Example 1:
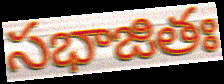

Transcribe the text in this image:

సభాజితః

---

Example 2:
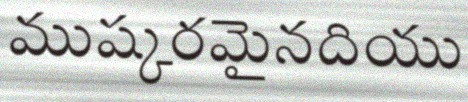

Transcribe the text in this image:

ముష్కరమైనదియు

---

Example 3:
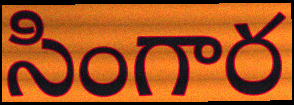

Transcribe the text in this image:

సింగార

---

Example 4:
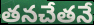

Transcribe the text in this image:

తనచేతనే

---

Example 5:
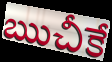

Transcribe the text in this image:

ఋచీకే